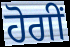
ਹੋਗੀਂ